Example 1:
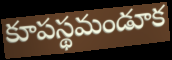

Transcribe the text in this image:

కూపస్థమండూక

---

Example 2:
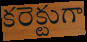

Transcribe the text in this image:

కరెక్టుగా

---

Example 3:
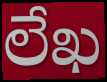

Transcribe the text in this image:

లేఖ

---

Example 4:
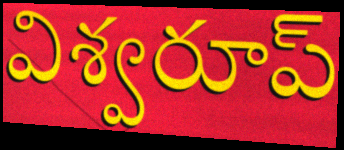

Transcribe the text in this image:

విశ్వరూప్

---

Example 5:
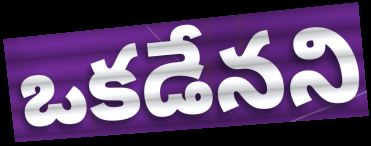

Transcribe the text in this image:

ఒకడేనని